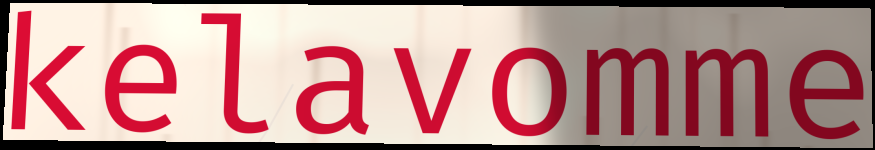
kelavomme